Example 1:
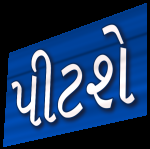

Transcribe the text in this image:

પીટશે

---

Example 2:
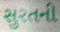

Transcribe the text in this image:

સુરતની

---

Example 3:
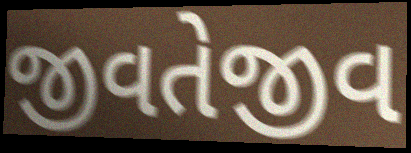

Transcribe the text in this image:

જીવતેજીવ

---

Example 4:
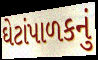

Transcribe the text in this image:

ઘેટાંપાળકનું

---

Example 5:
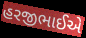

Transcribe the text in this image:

હરજીભાઈએ